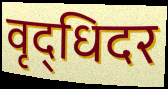
वृद्धिदर